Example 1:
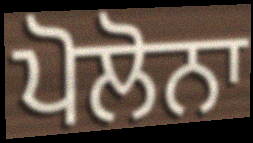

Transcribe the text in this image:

ਪੋਲੋਨਾ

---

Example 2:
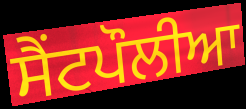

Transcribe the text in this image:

ਸੈਂਟਪੌਲੀਆ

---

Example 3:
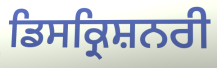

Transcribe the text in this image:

ਡਿਸਕ੍ਰਿਸ਼ਨਰੀ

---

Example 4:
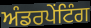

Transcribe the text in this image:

ਅੰਡਰਪੇਂਟਿੰਗ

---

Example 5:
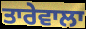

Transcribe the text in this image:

ਤਾਰੇਵਾਲਾ